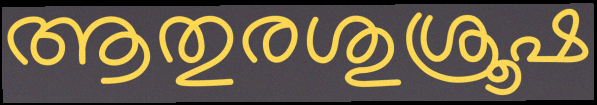
ആതുരശുശ്രൂഷ